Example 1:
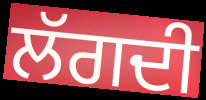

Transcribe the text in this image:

ਲੱਗਦੀ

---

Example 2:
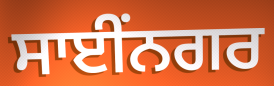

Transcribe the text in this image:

ਸਾਈਂਨਗਰ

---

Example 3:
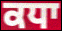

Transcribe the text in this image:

ਕਧਾ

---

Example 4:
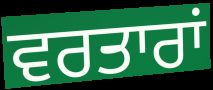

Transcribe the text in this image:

ਵਰਤਾਰਾਂ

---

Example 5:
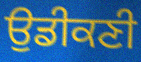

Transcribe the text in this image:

ਉਡੀਕਣੀ